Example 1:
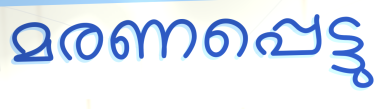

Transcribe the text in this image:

മരണപ്പെട്ടു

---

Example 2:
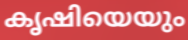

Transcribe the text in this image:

കൃഷിയെയും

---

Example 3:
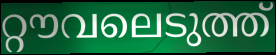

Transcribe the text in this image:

റ്റൗവലെടുത്ത്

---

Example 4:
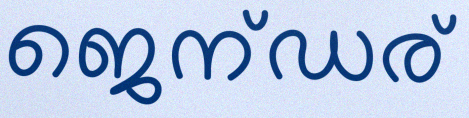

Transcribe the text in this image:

ജെന്ഡര്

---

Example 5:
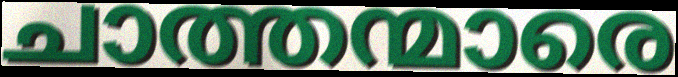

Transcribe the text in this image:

ചാത്തന്മാരെ